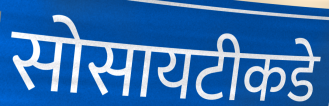
सोसायटीकडे